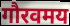
गौरवमय